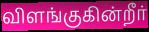
விளங்குகின்றீர்